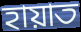
হায়াত